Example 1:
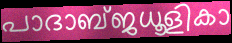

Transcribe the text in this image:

പാദാബ്ജധൂളികാ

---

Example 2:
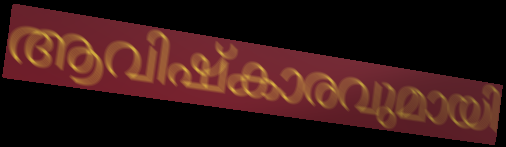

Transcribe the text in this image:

ആവിഷ്കാരവുമായി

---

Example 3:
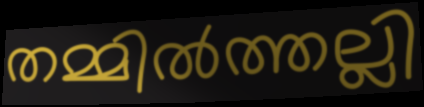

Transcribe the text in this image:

തമ്മിൽത്തല്ലി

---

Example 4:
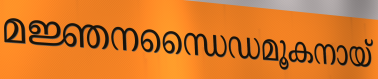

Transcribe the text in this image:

മജ്ഞനന്ധൈഡമൂകനായ്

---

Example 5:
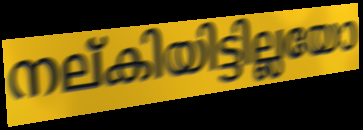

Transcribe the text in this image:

നല്കിയിട്ടില്ലയോ